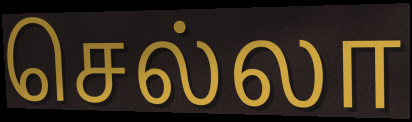
செல்லா